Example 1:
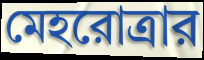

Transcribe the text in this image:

মেহরোত্রার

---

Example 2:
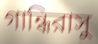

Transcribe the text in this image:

গান্ধিরাসু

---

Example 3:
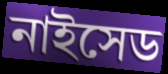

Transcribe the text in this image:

নাইসেড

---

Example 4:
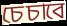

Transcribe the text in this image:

চেচাবে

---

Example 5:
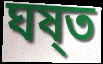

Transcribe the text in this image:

ঘষ্ত